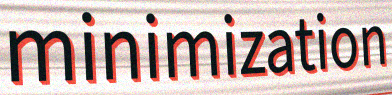
minimization